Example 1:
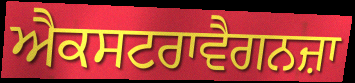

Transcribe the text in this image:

ਐਕਸਟਰਾਵੈਗਨਜ਼ਾ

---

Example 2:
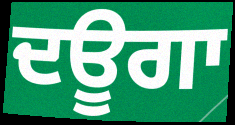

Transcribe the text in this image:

ਦਊਗਾ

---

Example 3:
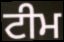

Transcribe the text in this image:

ਟੀਮ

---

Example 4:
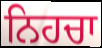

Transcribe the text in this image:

ਨਿਹਚਾ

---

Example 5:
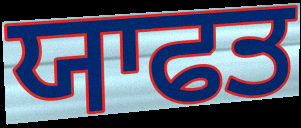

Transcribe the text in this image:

ਯਾਫਤ